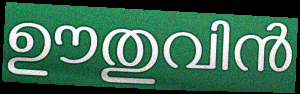
ഊതുവിൻ